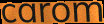
carom